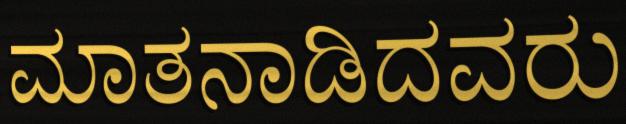
ಮಾತನಾಡಿದವರು